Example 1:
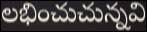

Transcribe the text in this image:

లభించుచున్నవి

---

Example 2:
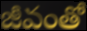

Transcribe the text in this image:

జీవంతో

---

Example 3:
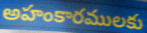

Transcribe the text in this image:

అహంకారములకు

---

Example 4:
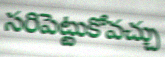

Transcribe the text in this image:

సరిపెట్టుకోవచ్చు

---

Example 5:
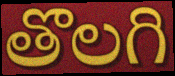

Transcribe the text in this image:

తొలగి